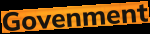
Govenment